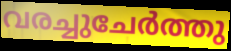
വരച്ചുചേർത്തു